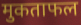
मुकताफल